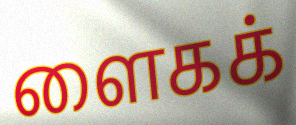
ளைகக்